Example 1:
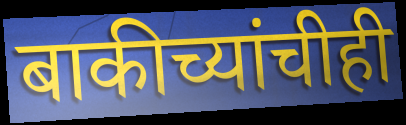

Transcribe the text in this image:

बाकीच्यांचीही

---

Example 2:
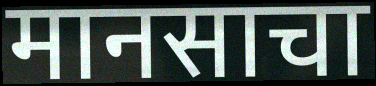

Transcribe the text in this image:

मानसाचा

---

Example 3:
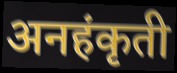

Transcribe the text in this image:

अनहंकृती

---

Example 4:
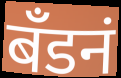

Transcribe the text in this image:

बँडनं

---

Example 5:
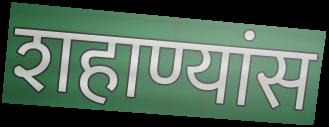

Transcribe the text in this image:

शहाण्यांस